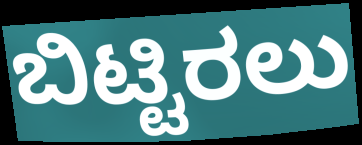
ಬಿಟ್ಟಿರಲು